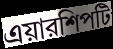
এয়ারশিপটি